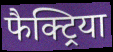
फैक्ट्रिया